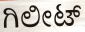
ಗಿಲೀಟ್